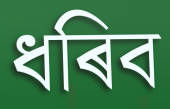
ধৰিব